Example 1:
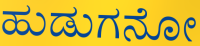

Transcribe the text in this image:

ಹುಡುಗನೋ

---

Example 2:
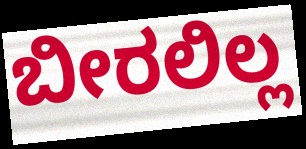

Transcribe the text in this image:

ಬೀರಲಿಲ್ಲ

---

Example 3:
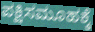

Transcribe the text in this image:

ಪಕ್ಷಿಸಮೂಹಕ್ಕೆ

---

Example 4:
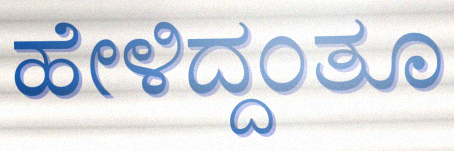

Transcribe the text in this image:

ಹೇಳಿದ್ದಂತೂ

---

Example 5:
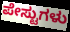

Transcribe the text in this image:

ಪೇಸ್ಟುಗಳು